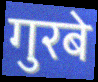
गुरबे